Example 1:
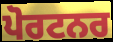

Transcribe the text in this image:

ਪੋਰਟਨਰ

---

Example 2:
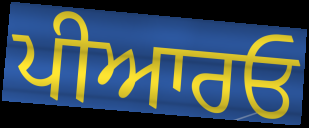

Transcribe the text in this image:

ਪੀਆਰਓ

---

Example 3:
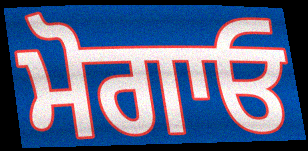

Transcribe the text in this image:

ਮੋਗਾਓ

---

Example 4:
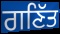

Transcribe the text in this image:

ਗਣਿੱਤ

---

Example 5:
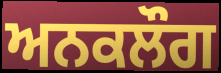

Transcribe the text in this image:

ਅਨਕਲੌਗ